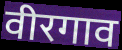
वीरगाव